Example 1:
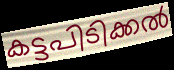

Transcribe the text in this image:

കട്ടപിടിക്കൽ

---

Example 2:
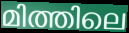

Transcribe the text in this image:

മിത്തിലെ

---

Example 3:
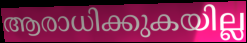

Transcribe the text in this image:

ആരാധിക്കുകയില്ല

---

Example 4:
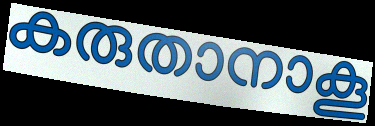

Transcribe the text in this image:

കരുതാനാകൂ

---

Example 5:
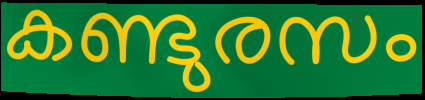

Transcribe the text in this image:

കണ്ടുരസം